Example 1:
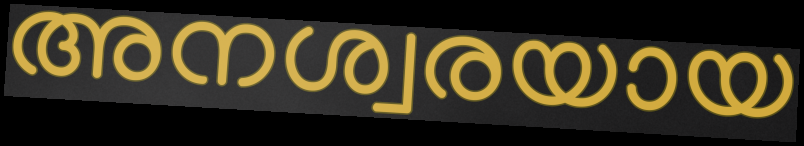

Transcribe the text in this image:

അനശ്വരയായ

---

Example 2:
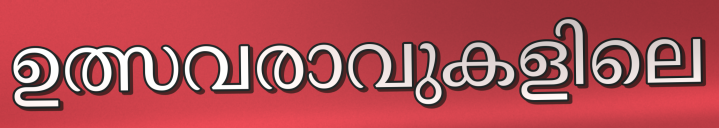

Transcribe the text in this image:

ഉത്സവരാവുകളിലെ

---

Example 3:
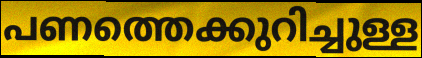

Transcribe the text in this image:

പണത്തെക്കുറിച്ചുള്ള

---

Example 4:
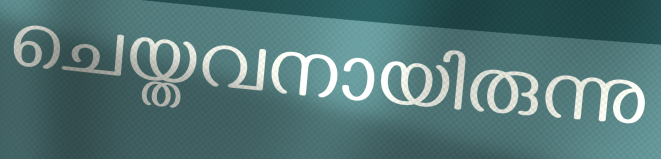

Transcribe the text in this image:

ചെയ്തവനായിരുന്നു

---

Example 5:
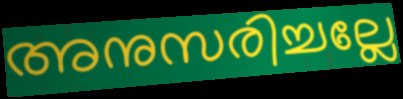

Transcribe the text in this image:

അനുസരിച്ചല്ലേ